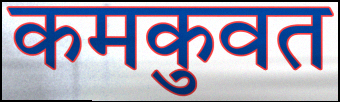
कमकुवत